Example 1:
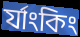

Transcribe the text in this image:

র্যাংকিং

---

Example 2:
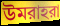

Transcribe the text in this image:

উমরাহরা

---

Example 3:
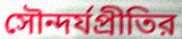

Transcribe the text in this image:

সৌন্দর্যপ্রীতির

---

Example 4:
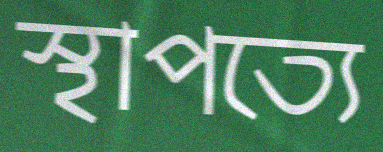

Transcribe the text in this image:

স্থাপত্যে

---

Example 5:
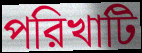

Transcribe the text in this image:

পরিখাটি